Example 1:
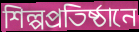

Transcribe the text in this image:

শিল্পপ্রতিষ্ঠানে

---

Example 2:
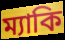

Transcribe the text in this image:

ম্যাকি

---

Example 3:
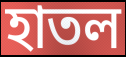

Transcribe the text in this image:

হাতল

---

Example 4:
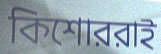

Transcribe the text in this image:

কিশোররাই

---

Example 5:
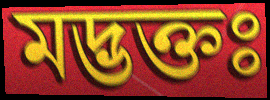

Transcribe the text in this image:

মদ্ভক্তঃ